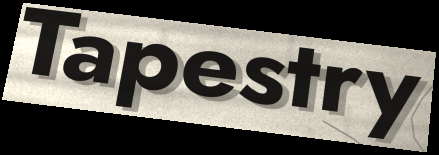
Tapestry